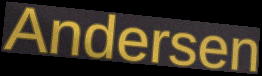
Andersen